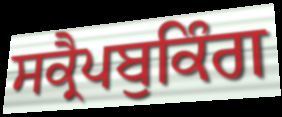
ਸਕ੍ਰੈਪਬੁਕਿੰਗ